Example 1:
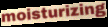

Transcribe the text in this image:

moisturizing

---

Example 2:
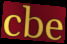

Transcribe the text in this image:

cbe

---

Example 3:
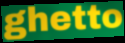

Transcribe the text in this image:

ghetto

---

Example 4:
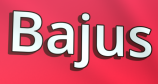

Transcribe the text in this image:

Bajus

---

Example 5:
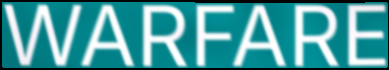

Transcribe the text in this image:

WARFARE